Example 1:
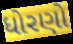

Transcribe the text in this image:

ધોરણો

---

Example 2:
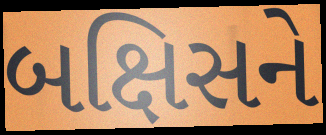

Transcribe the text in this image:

બક્ષિસને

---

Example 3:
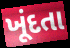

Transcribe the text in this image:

ખૂંદતા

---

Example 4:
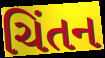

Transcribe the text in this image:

ચિંતન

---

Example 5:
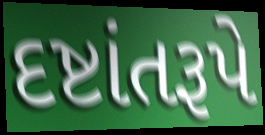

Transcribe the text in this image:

દષ્ટાંતરૂપે